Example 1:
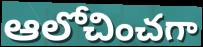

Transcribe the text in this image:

ఆలోచించగా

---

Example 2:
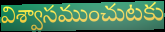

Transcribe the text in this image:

విశ్వాసముంచుటకు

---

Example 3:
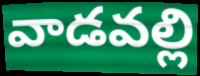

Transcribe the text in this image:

వాడవల్లి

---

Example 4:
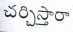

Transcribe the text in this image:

చర్చిస్తారా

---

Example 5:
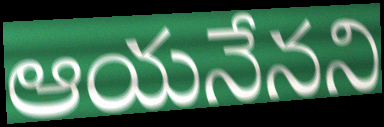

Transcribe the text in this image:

ఆయనేనని